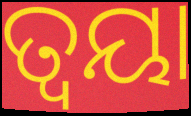
ତ୍ୱୟା